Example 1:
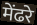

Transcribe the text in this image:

मेंढरे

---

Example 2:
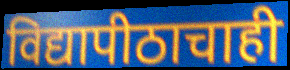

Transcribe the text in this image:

विद्यापीठाचाही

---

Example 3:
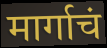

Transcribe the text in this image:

मार्गाचं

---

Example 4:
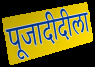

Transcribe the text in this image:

पूजादीदीला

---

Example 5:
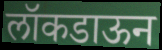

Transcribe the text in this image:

लॉकडाऊन